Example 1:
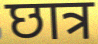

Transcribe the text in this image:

छात्र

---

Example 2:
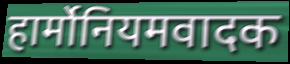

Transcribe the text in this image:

हार्मोनियमवादक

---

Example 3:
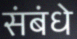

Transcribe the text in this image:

संबंधे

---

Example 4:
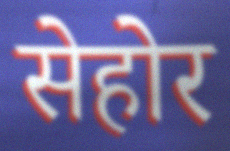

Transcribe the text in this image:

सेहोर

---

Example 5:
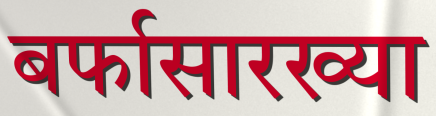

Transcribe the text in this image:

बर्फासारख्या